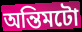
অন্তিমটো